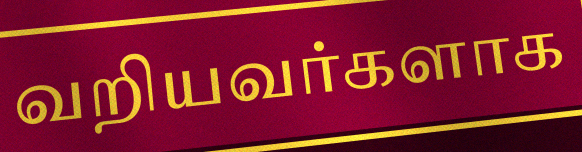
வறியவர்களாக